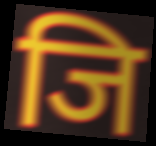
जि